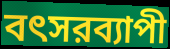
বৎসরব্যাপী